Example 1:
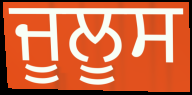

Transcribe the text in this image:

ਜੂਲੂਸ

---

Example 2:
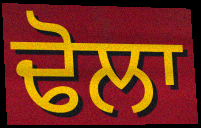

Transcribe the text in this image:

ਢੋਲਾ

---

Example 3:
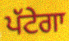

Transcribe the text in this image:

ਪੱਟੇਗਾ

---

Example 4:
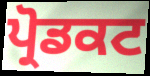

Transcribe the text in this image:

ਪ੍ਰੋਡਕਟ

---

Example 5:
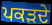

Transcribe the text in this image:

ਪਕੜਦੇ